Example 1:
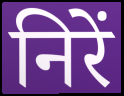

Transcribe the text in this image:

निरें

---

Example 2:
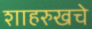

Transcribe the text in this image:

शाहरुखचे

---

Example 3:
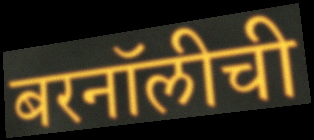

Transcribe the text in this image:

बरनॉलीची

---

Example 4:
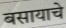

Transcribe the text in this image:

बसायाचे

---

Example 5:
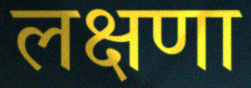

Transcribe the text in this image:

लक्षणा